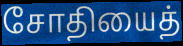
சோதியைத்